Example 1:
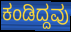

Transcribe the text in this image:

ಕಂಡಿದ್ದವು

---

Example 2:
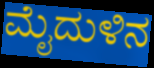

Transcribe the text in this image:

ಮೈದುಳಿನ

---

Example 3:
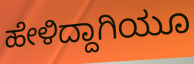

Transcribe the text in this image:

ಹೇಳಿದ್ದಾಗಿಯೂ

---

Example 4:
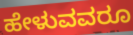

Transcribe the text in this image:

ಹೇಳುವವರೂ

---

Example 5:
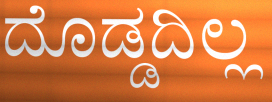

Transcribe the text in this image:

ದೊಡ್ಡದಿಲ್ಲ